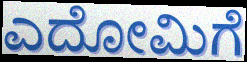
ಎದೋಮಿಗೆ